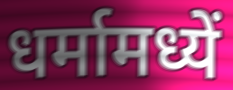
धर्मामध्यें